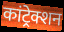
कांट्रेक्शन